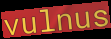
vulnus